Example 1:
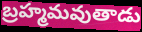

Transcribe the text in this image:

బ్రహ్మమవుతాడు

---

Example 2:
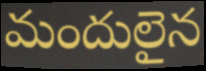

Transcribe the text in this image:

మందులైన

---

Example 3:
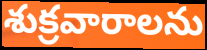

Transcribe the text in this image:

శుక్రవారాలను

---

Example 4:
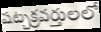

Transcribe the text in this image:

షట్చక్రవర్తులలో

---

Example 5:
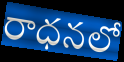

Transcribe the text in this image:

రాధనలో